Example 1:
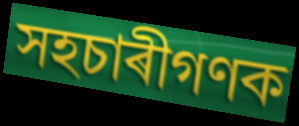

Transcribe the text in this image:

সহচাৰীগণক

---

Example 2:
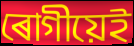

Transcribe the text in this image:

ৰোগীয়েই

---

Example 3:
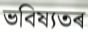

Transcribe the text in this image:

ভবিষ্যতৰ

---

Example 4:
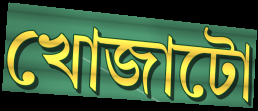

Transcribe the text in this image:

খোজাটো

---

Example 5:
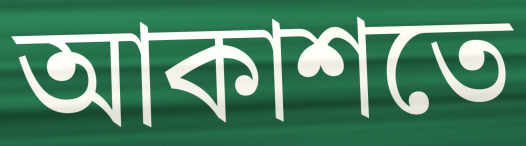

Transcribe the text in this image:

আকাশতে